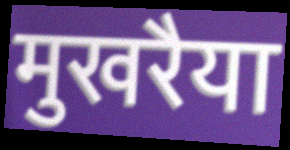
मुखरैया